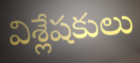
విశ్లేషకులు